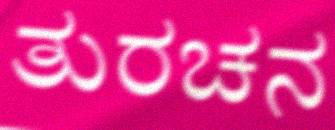
ತುರಚನ